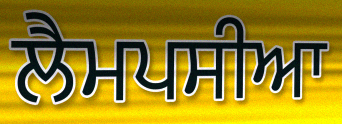
ਲੈਮਪਸੀਆ